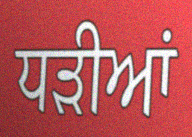
ਧੜੀਆਂ